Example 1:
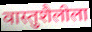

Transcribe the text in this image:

वास्तुशैलीला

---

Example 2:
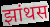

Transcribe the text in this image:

झांथस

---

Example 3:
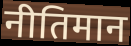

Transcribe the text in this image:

नीतिमान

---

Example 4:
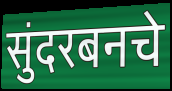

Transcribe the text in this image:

सुंदरबनचे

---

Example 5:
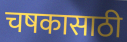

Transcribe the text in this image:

चषकासाठी